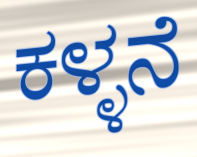
ಕಳ್ಳನೆ